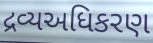
દ્રવ્યઅધિકરણ